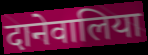
दानेवालिया